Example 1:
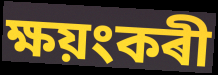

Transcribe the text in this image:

ক্ষয়ংকৰী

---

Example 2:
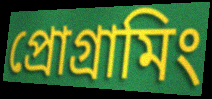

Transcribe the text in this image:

প্ৰোগ্ৰামিং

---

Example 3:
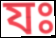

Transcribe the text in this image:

যঃ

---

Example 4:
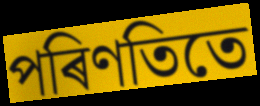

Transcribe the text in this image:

পৰিণতিতে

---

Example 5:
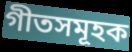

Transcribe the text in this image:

গীতসমূহক